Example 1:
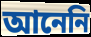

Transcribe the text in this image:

আনেনি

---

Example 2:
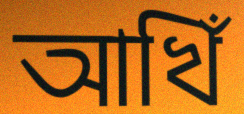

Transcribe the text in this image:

আখিঁ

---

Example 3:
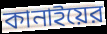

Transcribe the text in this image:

কানাইয়ের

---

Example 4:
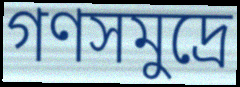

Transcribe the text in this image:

গণসমুদ্রে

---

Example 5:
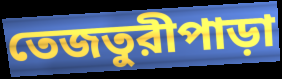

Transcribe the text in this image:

তেজতুরীপাড়া